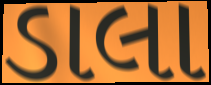
ડાલા